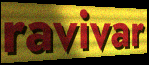
ravivar